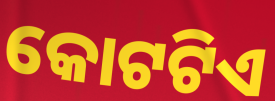
କୋଟଟିଏ